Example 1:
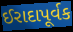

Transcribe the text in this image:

ઈરાદાપૂર્વક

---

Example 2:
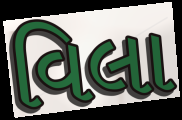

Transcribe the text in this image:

વિલા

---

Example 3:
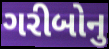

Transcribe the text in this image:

ગરીબોનુ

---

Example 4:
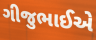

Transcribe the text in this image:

ગીજુભાઈએ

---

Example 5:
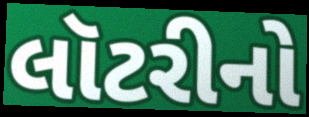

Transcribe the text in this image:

લૉટરીનો